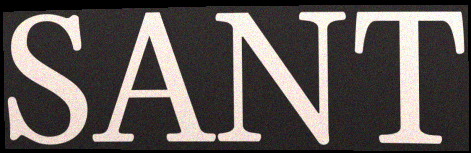
SANT